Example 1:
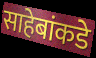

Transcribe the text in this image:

साहेबांकडे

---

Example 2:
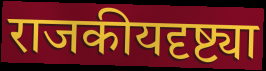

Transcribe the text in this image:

राजकीयदृष्ट्या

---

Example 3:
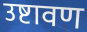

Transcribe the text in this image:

उष्टावण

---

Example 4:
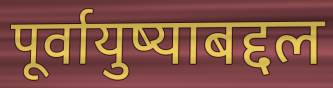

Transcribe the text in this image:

पूर्वायुष्याबद्दल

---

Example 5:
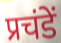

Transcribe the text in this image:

प्रचंडें